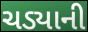
ચડ્યાની